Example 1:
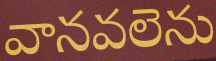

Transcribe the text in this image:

వానవలెను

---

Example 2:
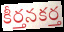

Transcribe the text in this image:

కీర్తనకర్త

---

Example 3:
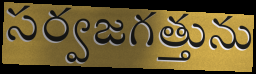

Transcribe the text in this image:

సర్వజగత్తును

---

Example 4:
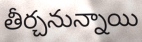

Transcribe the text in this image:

తీర్చనున్నాయి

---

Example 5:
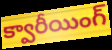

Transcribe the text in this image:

క్వారీయింగ్